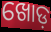
ଖୋଡ଼